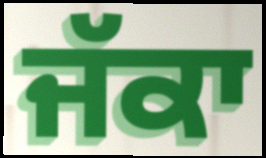
ਜੱਕਾ